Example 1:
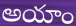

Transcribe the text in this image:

అయాం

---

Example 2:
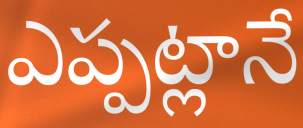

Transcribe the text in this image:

ఎప్పట్లానే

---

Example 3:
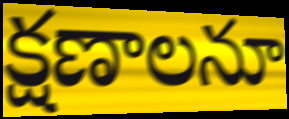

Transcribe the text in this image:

క్షణాలనూ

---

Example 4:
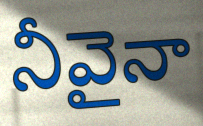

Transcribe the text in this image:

నీవైనా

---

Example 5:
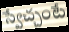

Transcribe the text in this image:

స్వేచ్చంటే